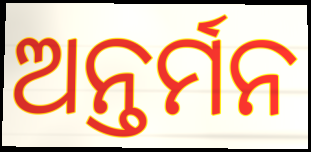
ଅନ୍ତର୍ମନ